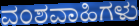
ವಂಶವಾಹಿಗಳು